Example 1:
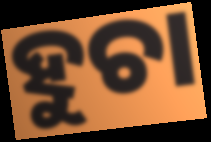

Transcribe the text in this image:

ହୁଚା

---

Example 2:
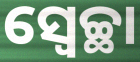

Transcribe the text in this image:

ସ୍ବେଚ୍ଛା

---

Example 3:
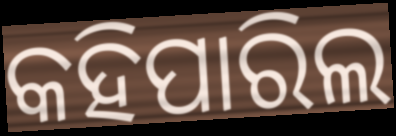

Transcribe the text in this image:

କହିପାରିଲ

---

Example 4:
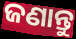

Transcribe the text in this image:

ଜଣାନ୍ତୁ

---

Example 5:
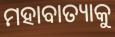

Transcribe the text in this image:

ମହାବାତ୍ୟାକୁ